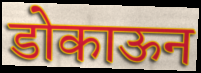
डोकाऊन